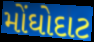
મોંઘોદાટ